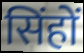
सिंहों